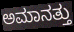
ಅಮಾನತ್ತು